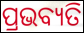
ପ୍ରଭବ୍ୟତି